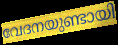
വേദനയുണ്ടായി